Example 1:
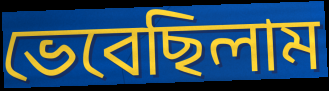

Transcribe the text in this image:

ভেবেছিলাম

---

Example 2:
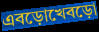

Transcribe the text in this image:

এবড়োখেবড়ো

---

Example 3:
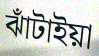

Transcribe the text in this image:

ঝাঁটাইয়া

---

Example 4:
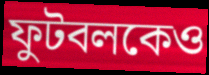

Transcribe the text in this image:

ফুটবলকেও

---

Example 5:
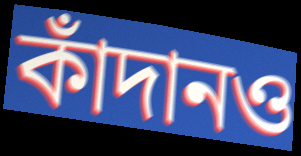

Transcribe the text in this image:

কাঁদানও